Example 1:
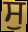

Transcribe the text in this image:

ਸੁ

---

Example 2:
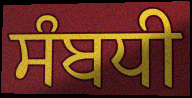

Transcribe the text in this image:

ਸੰਬਧੀ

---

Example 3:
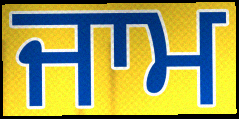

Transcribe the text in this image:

ਜਾਮ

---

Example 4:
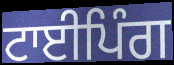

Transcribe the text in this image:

ਟਾਈਪਿੰਗ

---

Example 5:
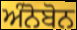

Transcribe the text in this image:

ਅੰਨੋਬੋਨ